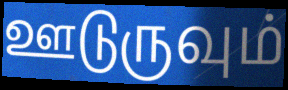
ஊடுருவும்